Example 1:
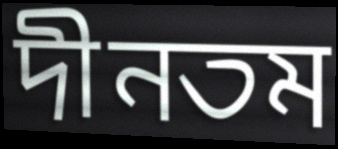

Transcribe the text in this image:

দীনতম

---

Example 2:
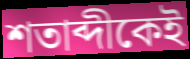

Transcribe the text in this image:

শতাব্দীকেই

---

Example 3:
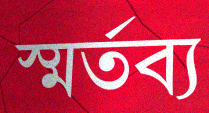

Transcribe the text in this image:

স্মর্তব্য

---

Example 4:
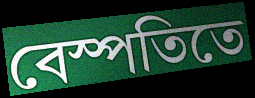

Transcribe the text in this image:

বেস্পতিতে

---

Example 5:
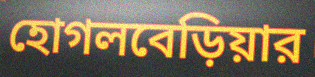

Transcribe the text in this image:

হোগলবেড়িয়ার